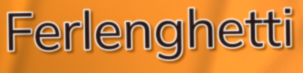
Ferlenghetti